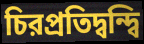
চিরপ্রতিদ্বন্দ্বি